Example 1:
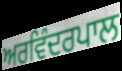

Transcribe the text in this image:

ਅਰਵਿੰਦਰਪਾਲ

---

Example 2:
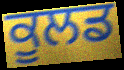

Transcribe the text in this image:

ਕੂਲਡ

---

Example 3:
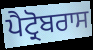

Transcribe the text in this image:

ਪੈਟ੍ਰੋਬਰਾਸ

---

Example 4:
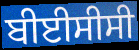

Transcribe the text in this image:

ਬੀਈਸੀਸੀ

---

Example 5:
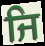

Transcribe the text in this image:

ਜਿ